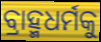
ବ୍ରାହ୍ମଧର୍ମକୁ